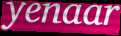
yenaar